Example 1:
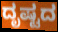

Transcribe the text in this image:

ದೃಷ್ಟದ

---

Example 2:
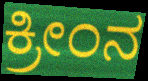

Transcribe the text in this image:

ಕ್ರೀಂನ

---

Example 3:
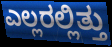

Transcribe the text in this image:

ಎಲ್ಲರಲ್ಲಿತ್ತು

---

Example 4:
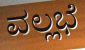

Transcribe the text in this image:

ವಲ್ಲಭೆ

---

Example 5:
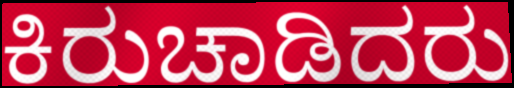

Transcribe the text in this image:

ಕಿರುಚಾಡಿದರು